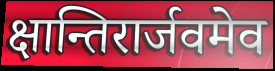
क्षान्तिरार्जवमेव